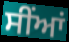
ਸੀਂਆਂ